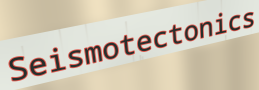
Seismotectonics